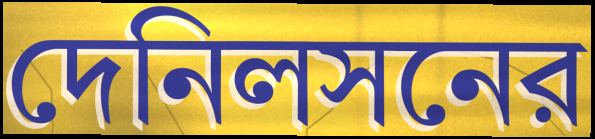
দেনিলসনের